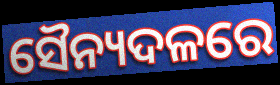
ସୈନ୍ୟଦଳରେ